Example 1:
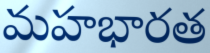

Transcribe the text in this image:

మహభారత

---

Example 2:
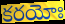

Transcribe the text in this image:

కరయోః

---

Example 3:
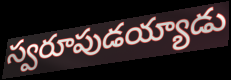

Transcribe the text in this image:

స్వరూపుడయ్యాడు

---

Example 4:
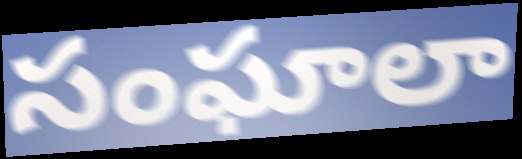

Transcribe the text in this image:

సంఘాలా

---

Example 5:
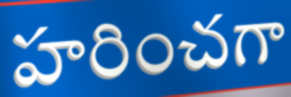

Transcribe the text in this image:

హరించగా